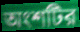
অংশটির